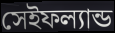
সেইফল্যান্ড